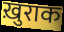
ख़ुराक